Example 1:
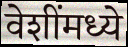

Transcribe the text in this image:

वेशींमध्ये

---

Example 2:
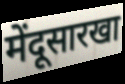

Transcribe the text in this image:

मेंदूसारखा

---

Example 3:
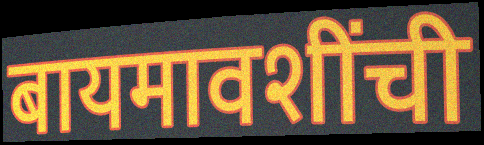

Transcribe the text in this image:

बायमावशींची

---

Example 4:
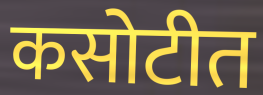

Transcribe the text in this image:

कसोटीत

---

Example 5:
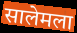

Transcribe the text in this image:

सालेमला